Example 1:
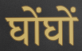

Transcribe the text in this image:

घोंघों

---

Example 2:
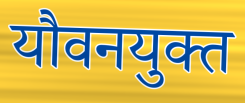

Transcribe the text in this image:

यौवनयुक्त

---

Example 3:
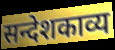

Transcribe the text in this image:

सन्देशकाव्य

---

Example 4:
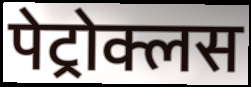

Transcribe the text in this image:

पेट्रोक्लस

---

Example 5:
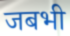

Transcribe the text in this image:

जबभी